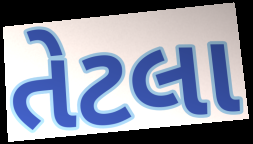
તેટલા